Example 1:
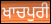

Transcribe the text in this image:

ਖਾਚਪੁਰੀ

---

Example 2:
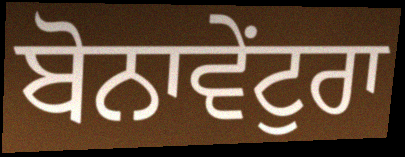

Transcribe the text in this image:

ਬੋਨਾਵੇਂਟੁਰਾ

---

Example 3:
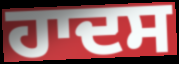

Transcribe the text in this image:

ਹਾਦਸ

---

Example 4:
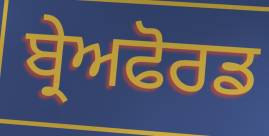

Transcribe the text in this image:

ਬ੍ਰੇਅਫੋਰਡ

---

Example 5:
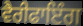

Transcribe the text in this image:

ਵੈਰੀਫਾਇੰਗ